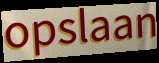
opslaan